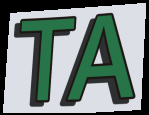
TA